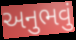
અનુભવું